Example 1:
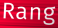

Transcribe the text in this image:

Rang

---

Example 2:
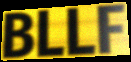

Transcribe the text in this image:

BLLF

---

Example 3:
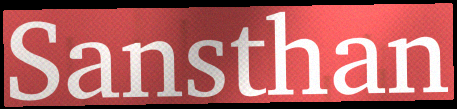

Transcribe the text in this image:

Sansthan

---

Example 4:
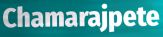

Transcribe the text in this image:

Chamarajpete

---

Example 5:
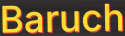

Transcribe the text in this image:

Baruch